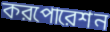
করপোরেশন